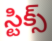
స్టిక్స్